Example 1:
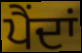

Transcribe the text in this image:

ਪੈਂਦਾਂ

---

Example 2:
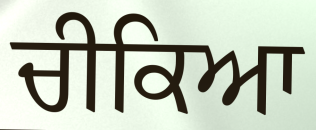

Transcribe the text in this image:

ਚੀਕਿਆ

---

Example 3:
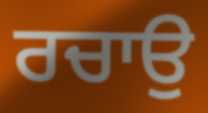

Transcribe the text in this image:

ਰਚਾਉ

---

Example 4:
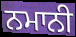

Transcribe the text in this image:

ਨਮਾਨੀ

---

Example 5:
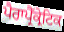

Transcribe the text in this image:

ਪੈਰਾਪ੍ਰੈੱਕ੍ਰੇਟਿਕ